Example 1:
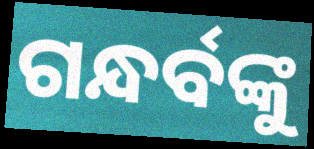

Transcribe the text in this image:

ଗନ୍ଧର୍ବଙ୍କୁ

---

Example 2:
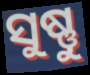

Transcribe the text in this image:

ସୁଷ୍ଣୁ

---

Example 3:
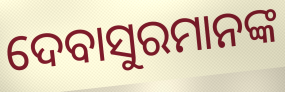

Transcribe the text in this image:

ଦେବାସୁରମାନଙ୍କ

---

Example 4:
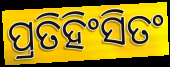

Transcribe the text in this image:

ପ୍ରତିହିଂସିତଂ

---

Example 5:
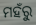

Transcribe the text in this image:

ମହଁରୁ